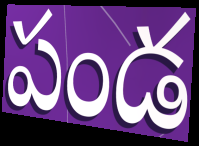
పండ